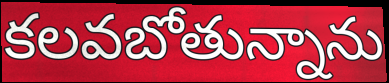
కలవబోతున్నాను